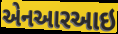
એનઆરઆઇ